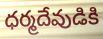
ధర్మదేవుడికి